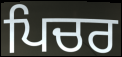
ਪਿਚਰ